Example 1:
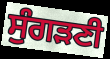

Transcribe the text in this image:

ਸੁੰਗੜਣੀ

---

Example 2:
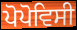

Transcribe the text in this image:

ਪੋਪੋਵਿਸੀ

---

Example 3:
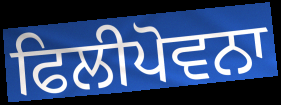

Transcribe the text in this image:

ਫਿਲੀਪੋਵਨਾ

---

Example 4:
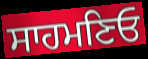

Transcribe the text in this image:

ਸਾਹਮਣਿਓ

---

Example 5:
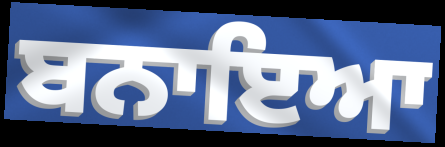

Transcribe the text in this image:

ਬਨਾਇਆ